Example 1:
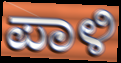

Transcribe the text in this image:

ಪಾಳಿ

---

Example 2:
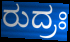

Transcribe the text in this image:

ರುದ್ರಃ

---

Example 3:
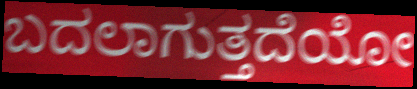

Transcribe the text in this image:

ಬದಲಾಗುತ್ತದೆಯೋ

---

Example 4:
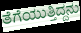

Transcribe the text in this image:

ತೆಗೆಯುತ್ತಿದ್ದನು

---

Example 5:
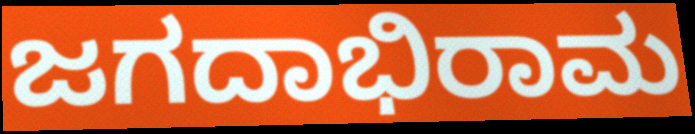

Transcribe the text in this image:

ಜಗದಾಭಿರಾಮ